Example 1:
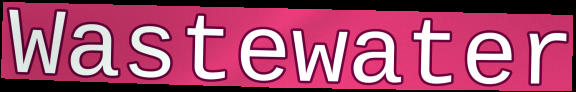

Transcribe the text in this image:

Wastewater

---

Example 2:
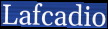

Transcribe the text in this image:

Lafcadio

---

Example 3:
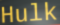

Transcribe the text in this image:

Hulk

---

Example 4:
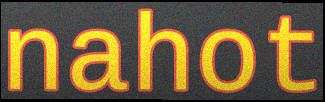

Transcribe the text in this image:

nahot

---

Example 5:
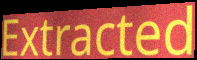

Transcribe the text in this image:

Extracted